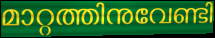
മാറ്റത്തിനുവേണ്ടി